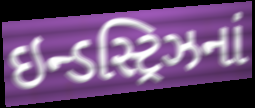
ઇન્ડસ્ટ્રિઝનાં